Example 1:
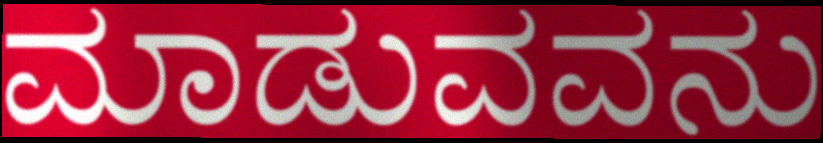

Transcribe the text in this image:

ಮಾಡುವವನು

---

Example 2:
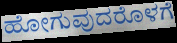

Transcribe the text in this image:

ಹೋಗುವುದರೊಳಗೆ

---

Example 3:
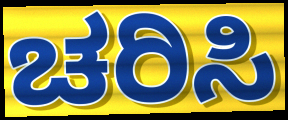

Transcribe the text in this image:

ಚರಿಸಿ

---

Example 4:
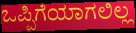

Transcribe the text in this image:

ಒಪ್ಪಿಗೆಯಾಗಲಿಲ್ಲ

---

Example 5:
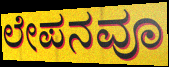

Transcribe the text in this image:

ಲೇಪನವೂ